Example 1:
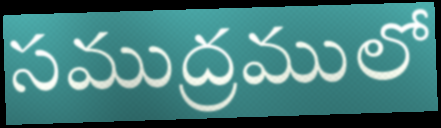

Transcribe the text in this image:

సముద్రములో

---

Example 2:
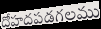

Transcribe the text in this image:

దోహదపడగలము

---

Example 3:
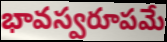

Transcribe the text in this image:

భావస్వరూపమే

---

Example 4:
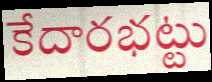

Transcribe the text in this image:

కేదారభట్టు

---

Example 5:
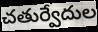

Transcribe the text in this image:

చతుర్వేదుల